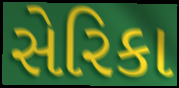
સેરિકા